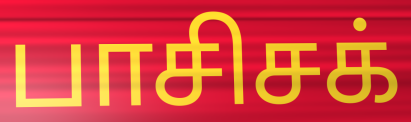
பாசிசக்